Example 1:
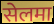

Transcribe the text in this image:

सेलमा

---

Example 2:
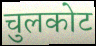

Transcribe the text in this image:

चुलकोट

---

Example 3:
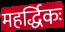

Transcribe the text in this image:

महर्द्धिकः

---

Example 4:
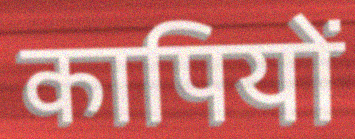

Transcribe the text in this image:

कापियों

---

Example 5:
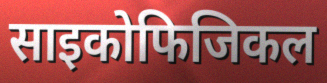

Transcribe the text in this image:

साइकोफिजिकल